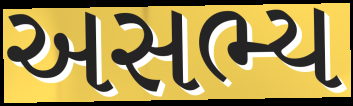
અસભ્ય